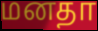
மனதா